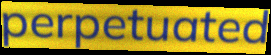
perpetuated